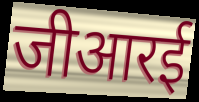
जीआरई